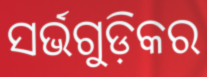
ସର୍ଭଗୁଡ଼ିକର